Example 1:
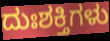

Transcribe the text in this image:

ದುಃಶಕ್ತಿಗಳು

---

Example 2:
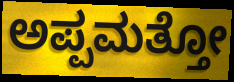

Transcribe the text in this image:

ಅಪ್ಪಮತ್ತೋ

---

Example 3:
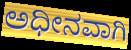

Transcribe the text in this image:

ಅಧೀನವಾಗಿ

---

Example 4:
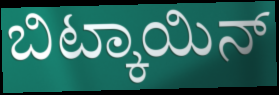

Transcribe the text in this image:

ಬಿಟ್ಕಾಯಿನ್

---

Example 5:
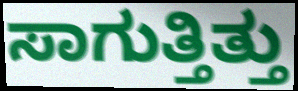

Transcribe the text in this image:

ಸಾಗುತ್ತಿತ್ತು